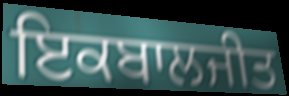
ਇਕਬਾਲਜੀਤ